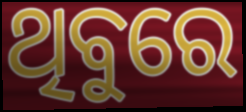
ଥିବୁରେ